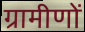
ग्रामीणों